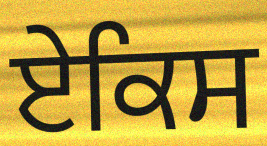
ਏਕਿਸ